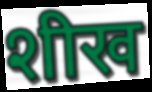
शीख